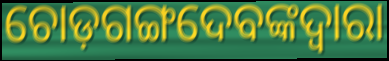
ଚୋଡ଼ଗଙ୍ଗଦେବଙ୍କଦ୍ୱାରା